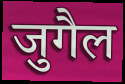
जुगैल